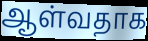
ஆள்வதாக